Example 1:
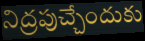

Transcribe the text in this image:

నిద్రపుచ్చేందుకు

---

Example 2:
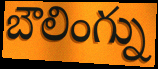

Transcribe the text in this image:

బౌలింగ్ను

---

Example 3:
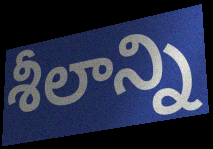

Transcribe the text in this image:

శీలాన్ని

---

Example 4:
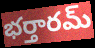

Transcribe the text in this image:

భర్తారమ్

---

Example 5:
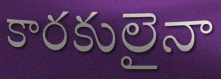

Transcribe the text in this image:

కారకులైనా